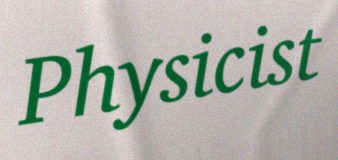
Physicist